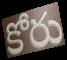
కోరు